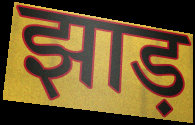
झाड़